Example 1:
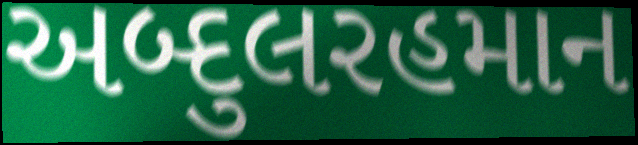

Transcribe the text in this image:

અબ્દુલરહમાન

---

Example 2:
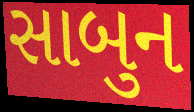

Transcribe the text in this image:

સાબુન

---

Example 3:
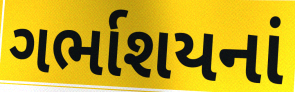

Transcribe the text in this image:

ગર્ભાશયનાં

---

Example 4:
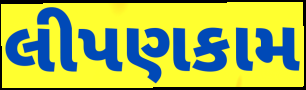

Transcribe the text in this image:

લીપણકામ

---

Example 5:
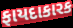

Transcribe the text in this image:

ફાયદાકારક